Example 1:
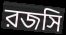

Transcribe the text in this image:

রজসি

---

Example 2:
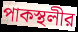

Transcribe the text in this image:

পাকস্থলীর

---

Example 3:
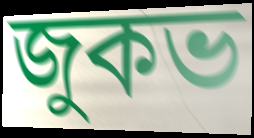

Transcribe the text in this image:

জুকভ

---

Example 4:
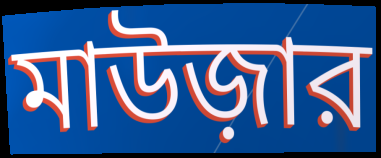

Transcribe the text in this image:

মাউজ়ার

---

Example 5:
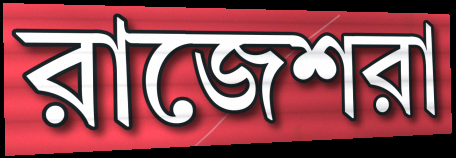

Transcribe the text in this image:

রাজেশরা